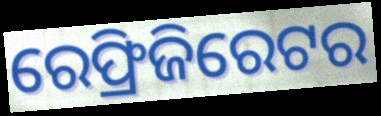
ରେଫ୍ରିଜିରେଟର